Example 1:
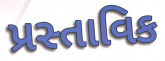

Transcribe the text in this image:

પ્રસ્તાવિક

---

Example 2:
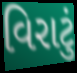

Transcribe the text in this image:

વિરાટું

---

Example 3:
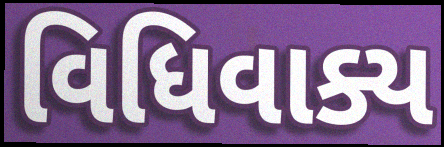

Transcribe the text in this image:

વિધિવાક્ય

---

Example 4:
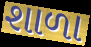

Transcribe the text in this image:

શાળા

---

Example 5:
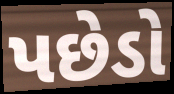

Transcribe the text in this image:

પછેડો